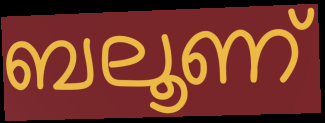
ബലൂണ്